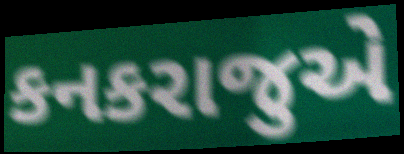
કનકરાજુએ